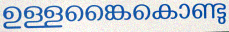
ഉള്ളങ്കൈകൊണ്ടു